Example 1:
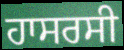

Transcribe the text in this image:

ਹਾਸਰਸੀ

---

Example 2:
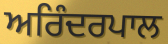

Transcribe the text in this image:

ਅਰਿੰਦਰਪਾਲ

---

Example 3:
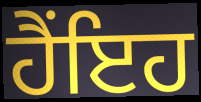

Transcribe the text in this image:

ਹੈਂਇਹ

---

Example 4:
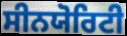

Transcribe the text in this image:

ਸੀਨਯੋਰਿਟੀ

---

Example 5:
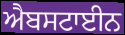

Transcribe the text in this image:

ਐਬਸਟਾਈਨ